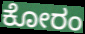
ಕೋರಂ